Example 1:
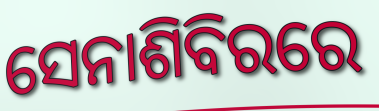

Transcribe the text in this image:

ସେନାଶିବିରରେ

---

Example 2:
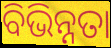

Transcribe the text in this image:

ବିଭିନ୍ନତା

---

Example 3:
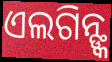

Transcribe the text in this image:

ଏଲଗିନ୍ଙ୍କ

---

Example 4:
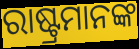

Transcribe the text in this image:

ରାଷ୍ଟ୍ରମାନଙ୍କ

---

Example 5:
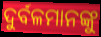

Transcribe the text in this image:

ଦୁର୍ବଳମାନଙ୍କୁ